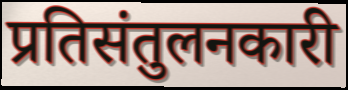
प्रतिसंतुलनकारी